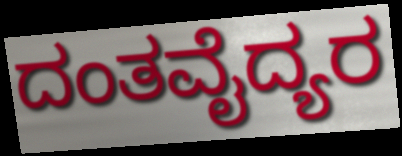
ದಂತವೈದ್ಯರ